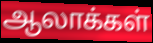
ஆலாக்கள்